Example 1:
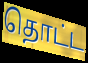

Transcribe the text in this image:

தொட்ட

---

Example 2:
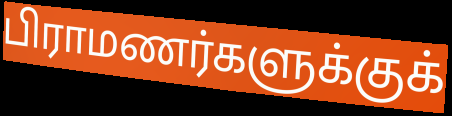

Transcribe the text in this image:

பிராமணர்களுக்குக்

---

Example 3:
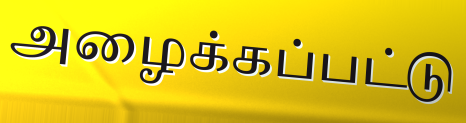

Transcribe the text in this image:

அழைக்கப்பட்டு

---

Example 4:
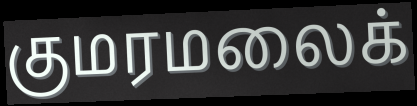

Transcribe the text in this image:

குமரமலைக்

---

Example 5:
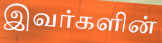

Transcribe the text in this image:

இவர்களின்